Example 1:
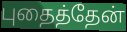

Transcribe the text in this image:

புதைத்தேன்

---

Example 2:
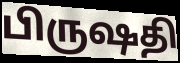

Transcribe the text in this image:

பிருஷதி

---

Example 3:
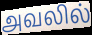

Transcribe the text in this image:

அவலில்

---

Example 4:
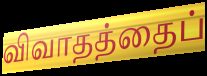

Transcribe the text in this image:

விவாதத்தைப்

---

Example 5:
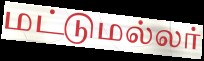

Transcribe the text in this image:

மட்டுமல்லர்